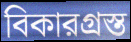
বিকারগ্রস্ত